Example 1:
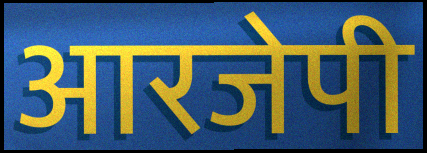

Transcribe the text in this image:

आरजेपी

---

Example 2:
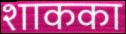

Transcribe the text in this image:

शाकका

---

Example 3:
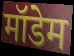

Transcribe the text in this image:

मॉडेम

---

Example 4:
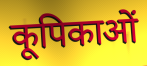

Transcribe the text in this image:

कूपिकाओं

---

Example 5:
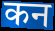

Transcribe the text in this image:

कन